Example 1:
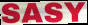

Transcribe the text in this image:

SASY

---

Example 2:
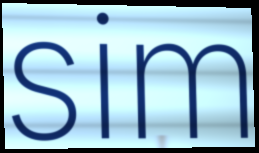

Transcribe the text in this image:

sim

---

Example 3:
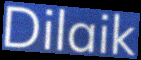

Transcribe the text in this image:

Dilaik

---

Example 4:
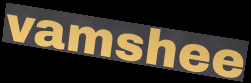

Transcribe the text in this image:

vamshee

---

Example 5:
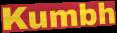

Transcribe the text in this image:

Kumbh